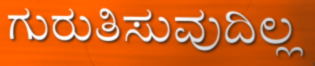
ಗುರುತಿಸುವುದಿಲ್ಲ